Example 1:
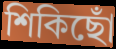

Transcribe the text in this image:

শিকিছোঁ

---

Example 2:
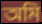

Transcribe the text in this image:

অমি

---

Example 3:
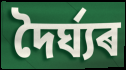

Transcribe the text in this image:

দৈৰ্ঘ্যৰ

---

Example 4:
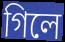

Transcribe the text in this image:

গিলে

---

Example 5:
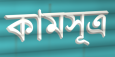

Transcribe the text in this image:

কামসূত্ৰ